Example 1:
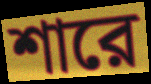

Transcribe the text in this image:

শারে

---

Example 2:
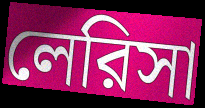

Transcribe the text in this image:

লেরিসা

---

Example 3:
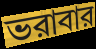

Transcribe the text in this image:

ভরাবার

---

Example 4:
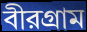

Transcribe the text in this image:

বীরগ্রাম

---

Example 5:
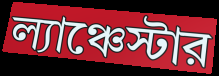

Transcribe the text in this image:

ল্যাঞ্চেস্টার